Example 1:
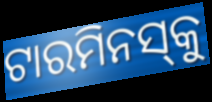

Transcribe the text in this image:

ଟାରମିନସ୍‌କୁ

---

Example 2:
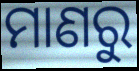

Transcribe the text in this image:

ମାଣରୁ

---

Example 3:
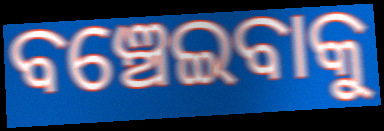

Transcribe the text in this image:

ବଞ୍ଚେଇବାକୁ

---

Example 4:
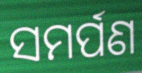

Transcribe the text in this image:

ସମର୍ପଣ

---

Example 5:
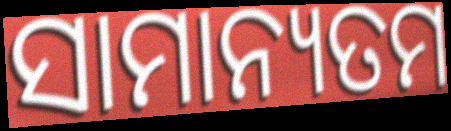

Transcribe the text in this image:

ସାମାନ୍ୟତମ